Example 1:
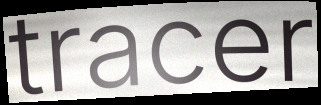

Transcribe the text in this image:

tracer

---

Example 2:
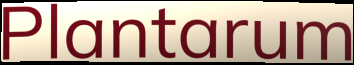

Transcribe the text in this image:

Plantarum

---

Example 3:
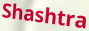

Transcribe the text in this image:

Shashtra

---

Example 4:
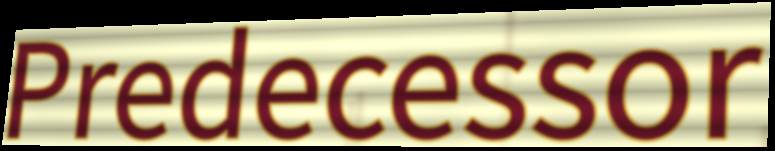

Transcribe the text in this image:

Predecessor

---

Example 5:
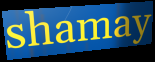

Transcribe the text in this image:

shamay